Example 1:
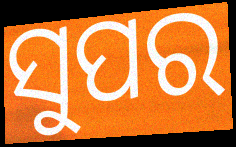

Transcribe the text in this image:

ସୁପର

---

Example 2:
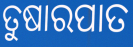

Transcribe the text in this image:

ତୁଷାରପାତ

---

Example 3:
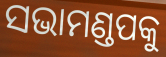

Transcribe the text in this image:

ସଭାମଣ୍ଡପକୁ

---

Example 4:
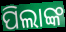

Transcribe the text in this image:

ପିଲାଙ୍କ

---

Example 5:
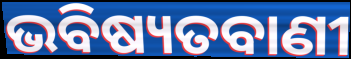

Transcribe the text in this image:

ଭବିଷ୍ୟତବାଣୀ